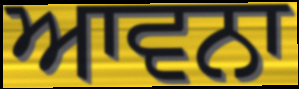
ਆਵਨਾ